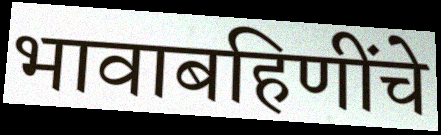
भावाबहिणींचे